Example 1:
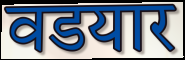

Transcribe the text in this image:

वडयार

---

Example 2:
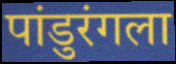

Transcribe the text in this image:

पांडुरंगला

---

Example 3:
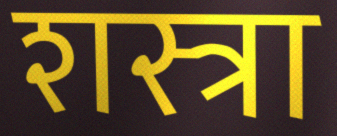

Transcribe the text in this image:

शस्त्रा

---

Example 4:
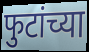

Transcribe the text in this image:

फुटांच्‍या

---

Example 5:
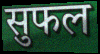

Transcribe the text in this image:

सुफल